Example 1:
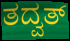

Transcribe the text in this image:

ತದ್ವತ್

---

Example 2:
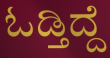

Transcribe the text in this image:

ಓಡ್ತಿದ್ದೆ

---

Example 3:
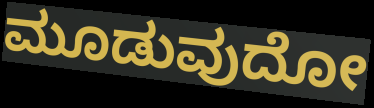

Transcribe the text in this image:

ಮೂಡುವುದೋ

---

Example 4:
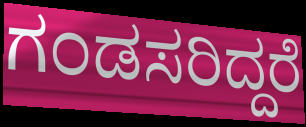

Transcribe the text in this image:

ಗಂಡಸರಿದ್ದರೆ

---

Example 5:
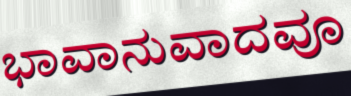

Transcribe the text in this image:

ಭಾವಾನುವಾದವೂ